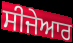
ਸੀਜੇਆਰ